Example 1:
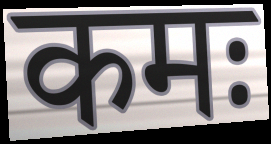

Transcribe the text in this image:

कमः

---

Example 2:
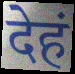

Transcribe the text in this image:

देहं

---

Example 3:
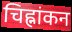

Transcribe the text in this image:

चिह्नांकन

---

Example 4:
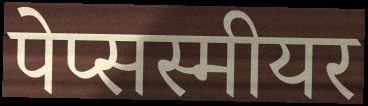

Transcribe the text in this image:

पेप्सस्मीयर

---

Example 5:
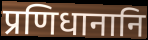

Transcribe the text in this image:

प्रणिधानानि